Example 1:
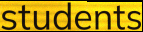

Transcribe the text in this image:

students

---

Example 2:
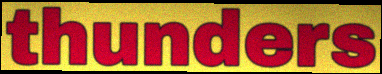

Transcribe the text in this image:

thunders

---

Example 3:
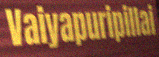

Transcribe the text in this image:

Vaiyapuripillai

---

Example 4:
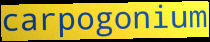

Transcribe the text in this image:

carpogonium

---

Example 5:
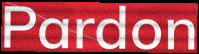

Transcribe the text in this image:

Pardon